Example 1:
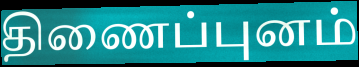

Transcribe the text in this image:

திணைப்புனம்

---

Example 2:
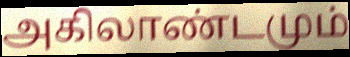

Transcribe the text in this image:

அகிலாண்டமும்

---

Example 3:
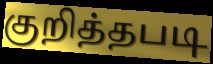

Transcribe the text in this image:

குறித்தபடி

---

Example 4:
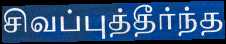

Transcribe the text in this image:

சிவப்புத்தீர்ந்த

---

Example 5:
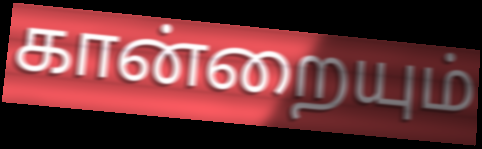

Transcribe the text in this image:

கான்றையும்